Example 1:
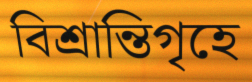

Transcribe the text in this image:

বিশ্রান্তিগৃহে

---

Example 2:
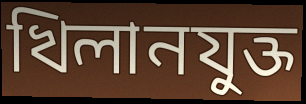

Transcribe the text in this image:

খিলানযুক্ত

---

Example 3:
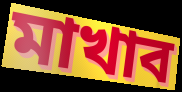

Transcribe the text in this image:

মাখাব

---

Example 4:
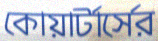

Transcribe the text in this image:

কোয়ার্টার্সের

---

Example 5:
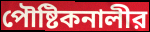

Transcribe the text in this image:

পৌষ্টিকনালীর